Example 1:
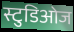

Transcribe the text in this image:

स्टुडिओज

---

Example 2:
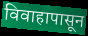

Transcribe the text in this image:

विवाहापासून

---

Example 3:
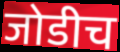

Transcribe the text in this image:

जोडीच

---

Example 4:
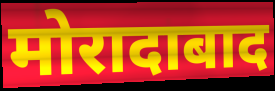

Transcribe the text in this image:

मोरादाबाद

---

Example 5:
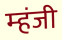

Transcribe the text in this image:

म्हंजी